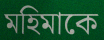
মহিমাকে